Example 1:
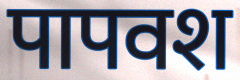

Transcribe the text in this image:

पापवश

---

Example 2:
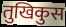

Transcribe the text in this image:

तुखिकुस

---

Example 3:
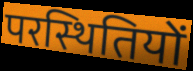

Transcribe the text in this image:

परस्थितियों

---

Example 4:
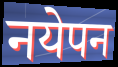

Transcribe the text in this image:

नयेपन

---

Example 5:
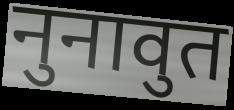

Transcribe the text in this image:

नुनावुत